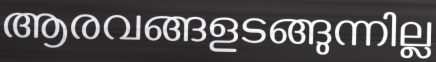
ആരവങ്ങളടങ്ങുന്നില്ല